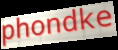
phondke